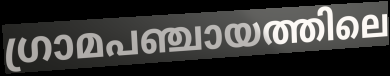
ഗ്രാമപഞ്ചായത്തിലെ